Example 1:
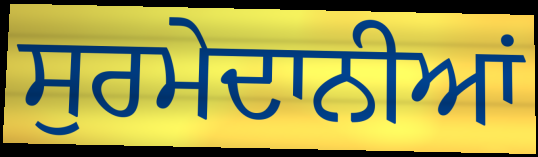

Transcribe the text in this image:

ਸੁਰਮੇਦਾਨੀਆਂ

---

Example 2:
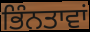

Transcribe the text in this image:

ਭਿੰਨਤਾਵਾਂ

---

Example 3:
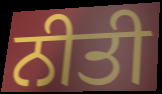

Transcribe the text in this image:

ਨੀਤੀ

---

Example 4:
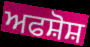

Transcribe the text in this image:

ਅਫਸ਼ੋਸ਼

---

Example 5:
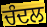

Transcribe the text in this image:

ਚੰਦਲ